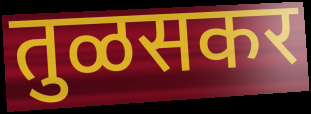
तुळसकर